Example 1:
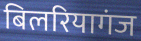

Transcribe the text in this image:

बिलरियागंज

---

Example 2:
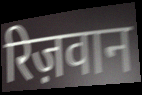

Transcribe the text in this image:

रिज़वान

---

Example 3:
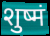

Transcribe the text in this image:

शुष्मं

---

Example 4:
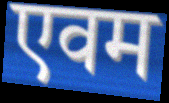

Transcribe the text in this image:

एवम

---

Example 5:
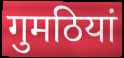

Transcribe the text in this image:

गुमठियां